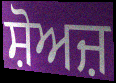
ਸ਼ੋਅਜ਼